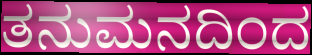
ತನುಮನದಿಂದ